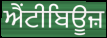
ਐਂਟੀਬਿਊਜ਼